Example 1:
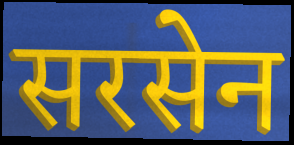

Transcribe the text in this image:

सरसेन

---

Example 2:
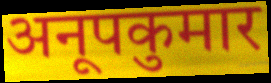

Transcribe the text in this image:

अनूपकुमार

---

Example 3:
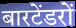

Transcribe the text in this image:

बारटेंडरों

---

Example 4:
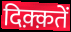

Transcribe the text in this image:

दिक़्क़तें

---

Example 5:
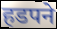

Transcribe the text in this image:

हडपने